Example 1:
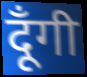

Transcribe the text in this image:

दूँगी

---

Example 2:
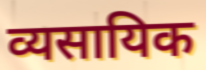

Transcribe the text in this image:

व्यसायिक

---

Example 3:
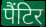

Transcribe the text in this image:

पैंटिर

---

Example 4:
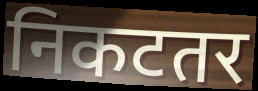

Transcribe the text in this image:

निकटतर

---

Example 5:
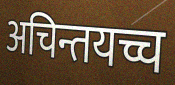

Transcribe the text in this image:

अचिन्तयच्च